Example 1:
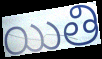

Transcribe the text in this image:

యితి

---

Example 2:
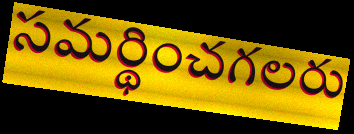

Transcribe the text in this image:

సమర్థించగలరు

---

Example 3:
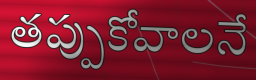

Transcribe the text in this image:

తప్పుకోవాలనే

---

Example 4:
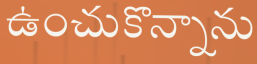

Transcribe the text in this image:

ఉంచుకొన్నాను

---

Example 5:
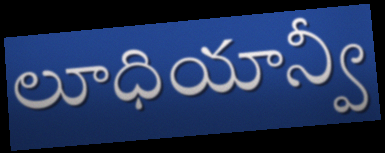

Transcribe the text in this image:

లూధియాన్వీ